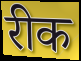
रीक